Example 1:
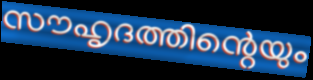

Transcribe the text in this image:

സൗഹൃദത്തിന്റെയും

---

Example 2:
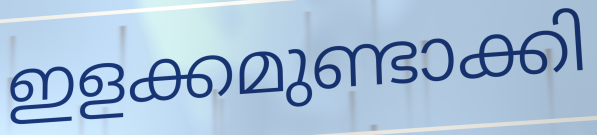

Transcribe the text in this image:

ഇളക്കമുണ്ടാക്കി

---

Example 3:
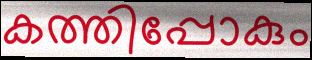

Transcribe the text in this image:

കത്തിപ്പോകും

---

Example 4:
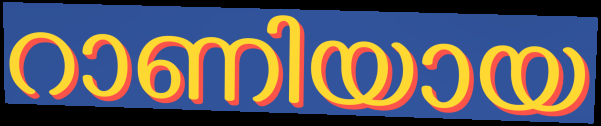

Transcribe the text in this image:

റാണിയായ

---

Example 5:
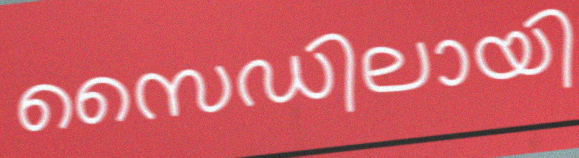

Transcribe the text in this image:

സൈഡിലായി